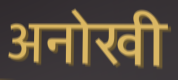
अनोखी